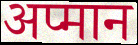
अप्मान